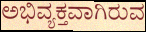
ಅಭಿವ್ಯಕ್ತವಾಗಿರುವ